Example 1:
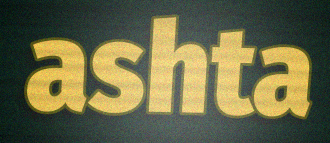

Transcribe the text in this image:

ashta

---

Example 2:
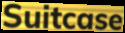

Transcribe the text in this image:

Suitcase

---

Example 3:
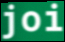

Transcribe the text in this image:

joi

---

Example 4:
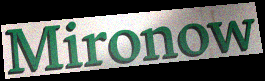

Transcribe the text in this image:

Mironow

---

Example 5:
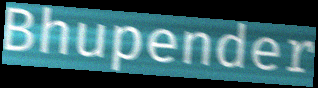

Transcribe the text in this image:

Bhupender